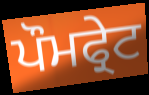
ਪੌਮਫ੍ਰੇਟ